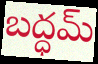
బద్ధమ్